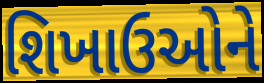
શિખાઉઓને